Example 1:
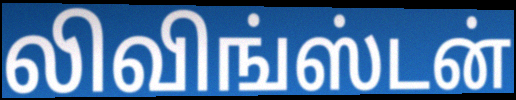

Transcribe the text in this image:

லிவிங்ஸ்டன்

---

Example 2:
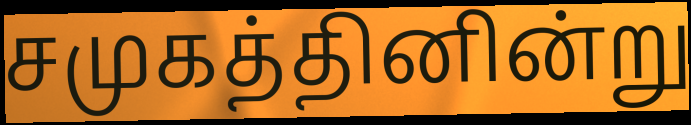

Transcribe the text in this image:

சமுகத்தினின்று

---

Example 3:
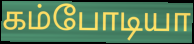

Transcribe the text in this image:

கம்போடியா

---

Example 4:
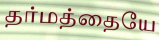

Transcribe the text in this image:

தர்மத்தையே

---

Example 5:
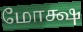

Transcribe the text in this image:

மோக்ஷ